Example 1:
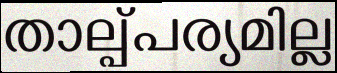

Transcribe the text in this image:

താല്പ്പര്യമില്ല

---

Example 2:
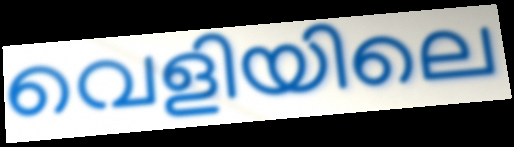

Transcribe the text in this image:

വെളിയിലെ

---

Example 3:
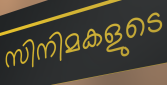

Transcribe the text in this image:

സിനിമകളുടെ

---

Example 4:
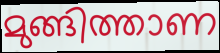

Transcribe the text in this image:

മുങ്ങിത്താണ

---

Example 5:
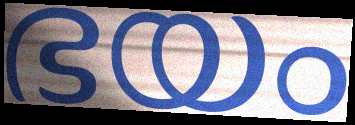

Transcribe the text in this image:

ഭയം